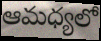
ఆమధ్యలో